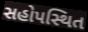
સહોપસ્થિત